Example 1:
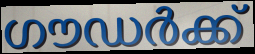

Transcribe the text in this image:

ഗൗഡർക്ക്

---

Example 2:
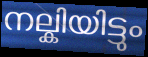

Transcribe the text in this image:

നല്കിയിട്ടും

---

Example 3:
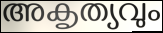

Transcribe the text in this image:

അകൃത്യവും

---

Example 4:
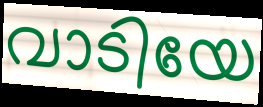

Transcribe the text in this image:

വാടിയേ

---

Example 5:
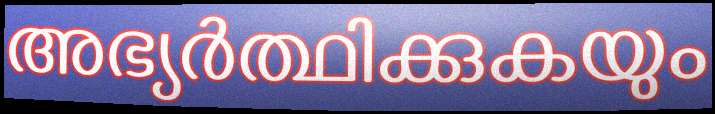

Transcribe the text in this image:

അഭ്യർത്ഥിക്കുകയും